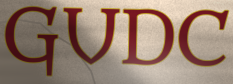
GUDC